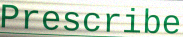
Prescribe